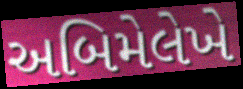
અબિમેલેખે